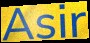
Asir